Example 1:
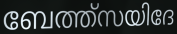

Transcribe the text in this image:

ബേത്ത്സയിദേ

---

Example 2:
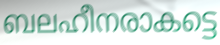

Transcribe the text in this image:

ബലഹീനരാകട്ടെ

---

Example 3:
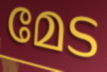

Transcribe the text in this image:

മേട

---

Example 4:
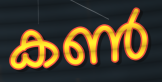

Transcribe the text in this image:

കൺ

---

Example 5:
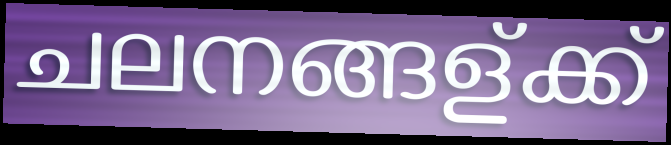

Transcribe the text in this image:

ചലനങ്ങള്ക്ക്